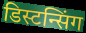
डिस्टन्सिंग